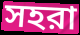
সহরা